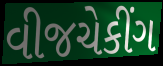
વીજચેકીંગ